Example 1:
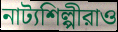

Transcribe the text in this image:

নাট্যশিল্পীরাও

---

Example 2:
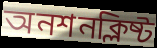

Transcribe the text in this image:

অনশনক্লিষ্ট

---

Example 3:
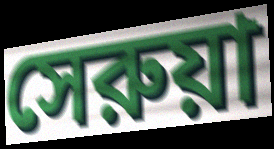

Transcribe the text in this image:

সেরুয়া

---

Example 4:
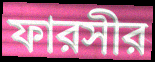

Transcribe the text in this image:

ফারসীর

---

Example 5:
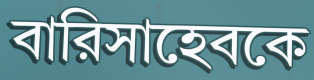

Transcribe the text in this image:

বারিসাহেবকে